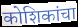
कोशिकांचा